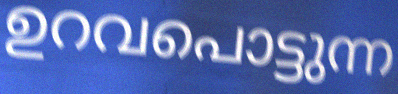
ഉറവപൊട്ടുന്ന